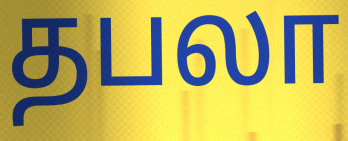
தபலா